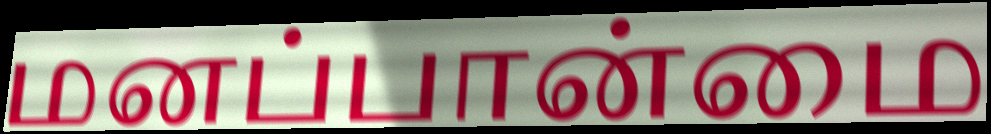
மனப்பான்மை